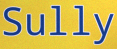
Sully